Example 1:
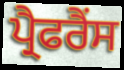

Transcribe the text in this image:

ਪ੍ਰੈਫਰੈਂਸ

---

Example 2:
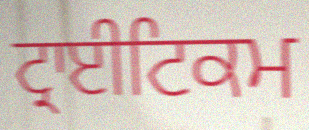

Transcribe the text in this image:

ਟ੍ਰਾਈਟਿਕਮ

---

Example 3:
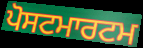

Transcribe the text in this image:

ਪੋਸਟਮਾਰਟਮ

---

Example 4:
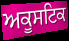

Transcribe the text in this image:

ਅਕੂਸਟਿਕ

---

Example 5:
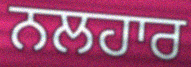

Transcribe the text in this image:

ਨਲਹਾਰ